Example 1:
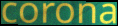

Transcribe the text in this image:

corona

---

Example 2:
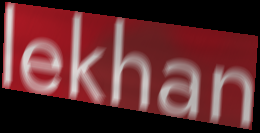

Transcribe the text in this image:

lekhan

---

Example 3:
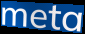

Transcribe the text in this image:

meta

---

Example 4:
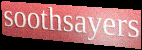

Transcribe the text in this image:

soothsayers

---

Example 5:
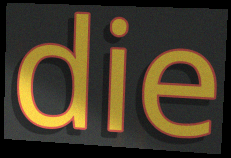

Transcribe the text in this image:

die